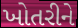
ખોતરીને